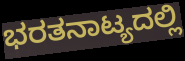
ಭರತನಾಟ್ಯದಲ್ಲಿ